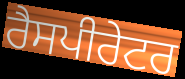
ਰੈਸਪੀਰੇਟਰ